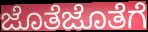
ಜೊತೆಜೊತೆಗೆ